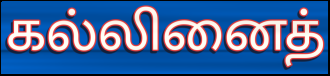
கல்லினைத்